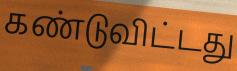
கண்டுவிட்டது